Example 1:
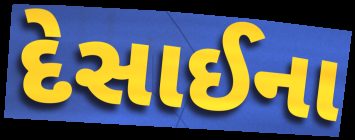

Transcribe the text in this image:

દેસાઈના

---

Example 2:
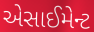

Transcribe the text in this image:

એસાઈમેન્ટ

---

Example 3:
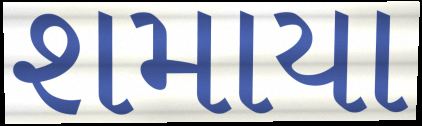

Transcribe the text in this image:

શમાયા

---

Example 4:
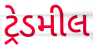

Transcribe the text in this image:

ટ્રેડમીલ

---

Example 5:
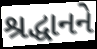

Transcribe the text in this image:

શ્રદ્ધાનને